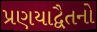
પ્રણયાદ્વૈતનો